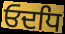
ਓਦਧਿ